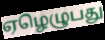
ஏழெழுபது